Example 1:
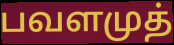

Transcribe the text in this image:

பவளமுத்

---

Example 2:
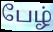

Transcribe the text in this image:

பேழ்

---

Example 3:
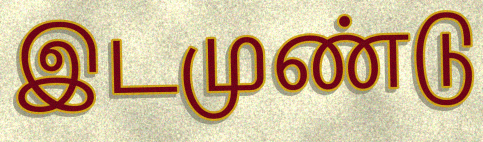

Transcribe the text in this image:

இடமுண்டு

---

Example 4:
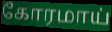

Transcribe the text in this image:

கோரமாய்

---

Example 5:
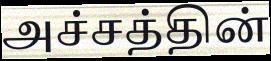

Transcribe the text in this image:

அச்சத்தின்